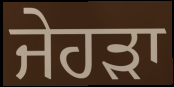
ਜੇਹੜਾ